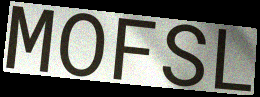
MOFSL